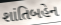
શાંતિબહેન